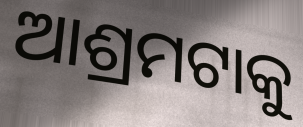
ଆଶ୍ରମଟାକୁ